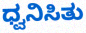
ಧ್ವನಿಸಿತು